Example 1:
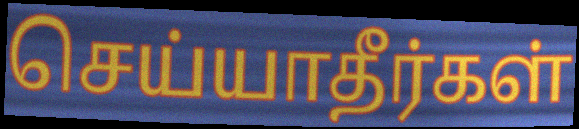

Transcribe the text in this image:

செய்யாதீர்கள்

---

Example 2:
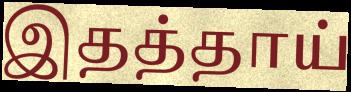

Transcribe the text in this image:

இதத்தாய்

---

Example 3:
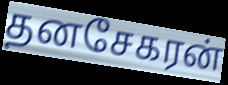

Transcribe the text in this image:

தனசேகரன்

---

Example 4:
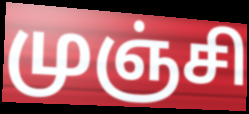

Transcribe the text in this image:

முஞ்சி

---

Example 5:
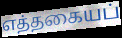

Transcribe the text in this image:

எத்தகையப்